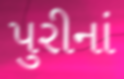
પુરીનાં